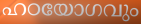
ഹഠയോഗവും